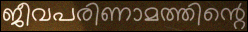
ജീവപരിണാമത്തിന്റെ